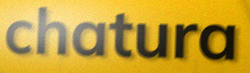
chatura